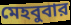
মেহবুবার